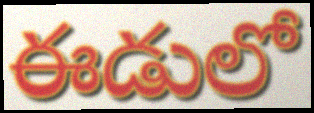
ఈడులో